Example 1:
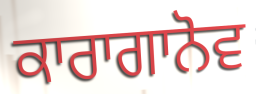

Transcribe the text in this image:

ਕਾਰਾਗਾਨੋਵ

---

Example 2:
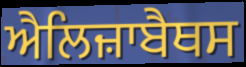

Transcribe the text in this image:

ਐਲਿਜ਼ਾਬੈਥਸ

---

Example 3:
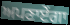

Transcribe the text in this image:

ਅਪਣਾਏਂਗਾ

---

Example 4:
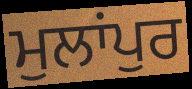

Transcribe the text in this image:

ਮੁਲਾਂਪੁਰ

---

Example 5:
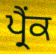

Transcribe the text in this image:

ਪ੍ਰੈਂਕ